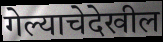
गेल्याचेदेखील